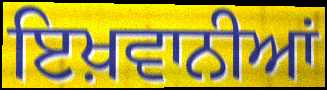
ਇਖ਼ਵਾਨੀਆਂ